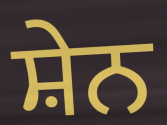
ਸ਼ੇਨ